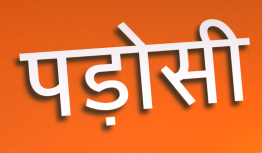
पड़ोसी